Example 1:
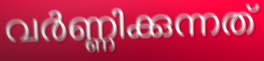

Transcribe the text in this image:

വർണ്ണിക്കുന്നത്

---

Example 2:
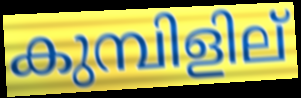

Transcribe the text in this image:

കുമ്പിളില്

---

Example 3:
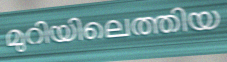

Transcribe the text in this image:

മുറിയിലെത്തിയ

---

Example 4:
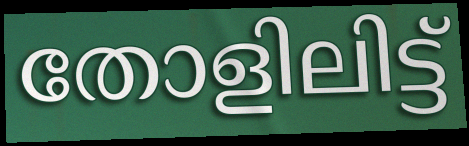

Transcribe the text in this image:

തോളിലിട്ട്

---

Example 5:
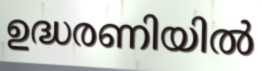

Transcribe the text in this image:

ഉദ്ധരണിയിൽ